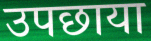
उपछाया